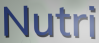
Nutri